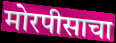
मोरपीसाचा